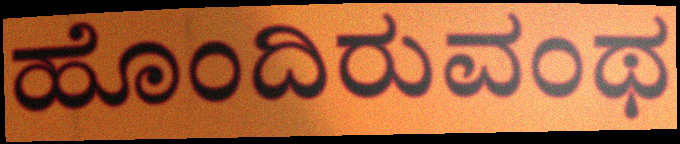
ಹೊಂದಿರುವಂಥ